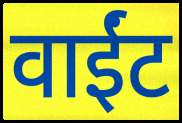
वाईंट